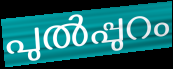
പുൽപ്പുറം